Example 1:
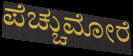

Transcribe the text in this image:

ಪೆಚ್ಚುಮೋರೆ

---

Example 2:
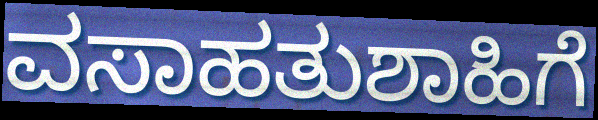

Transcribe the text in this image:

ವಸಾಹತುಶಾಹಿಗೆ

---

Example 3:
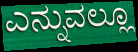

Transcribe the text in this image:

ಎನ್ನುವಲ್ಲೂ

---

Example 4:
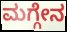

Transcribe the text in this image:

ಮಗ್ಗೇನ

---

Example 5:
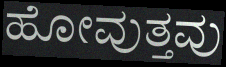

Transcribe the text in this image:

ಹೋವುತ್ತವು